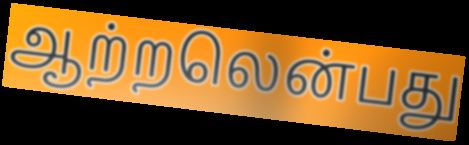
ஆற்றலென்பது